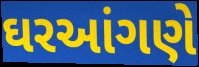
ઘરઆંગણે